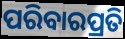
ପରିବାରପ୍ରତି